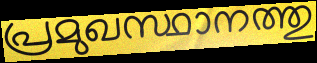
പ്രമുഖസ്ഥാനത്തു